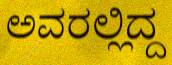
ಅವರಲ್ಲಿದ್ದ